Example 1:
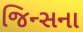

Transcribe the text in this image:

જિન્સના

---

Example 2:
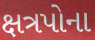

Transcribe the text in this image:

ક્ષત્રપોના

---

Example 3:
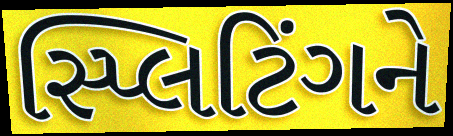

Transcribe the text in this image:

સ્પ્લિટિંગને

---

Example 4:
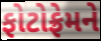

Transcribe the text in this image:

ફોટોફ્રેમને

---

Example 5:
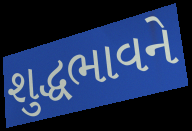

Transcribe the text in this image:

શુદ્ધભાવને